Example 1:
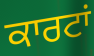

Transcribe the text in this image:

ਕਾਰਟਾਂ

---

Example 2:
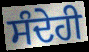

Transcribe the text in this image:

ਸੰਦੇਹੀ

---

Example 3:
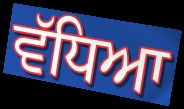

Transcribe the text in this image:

ਵੱਧਿਆ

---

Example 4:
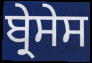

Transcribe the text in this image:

ਬ੍ਰੇਸੇਸ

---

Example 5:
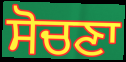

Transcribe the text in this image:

ਸੋਚਣਾ